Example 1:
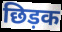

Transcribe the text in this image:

छिड़क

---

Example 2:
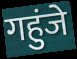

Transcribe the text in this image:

गहुंजे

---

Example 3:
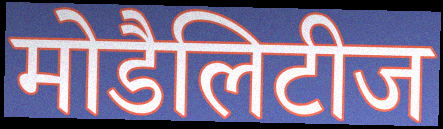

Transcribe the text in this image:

मोडैलिटीज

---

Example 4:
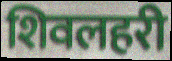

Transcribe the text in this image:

शिवलहरी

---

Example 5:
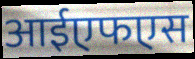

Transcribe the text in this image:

आईएफएस